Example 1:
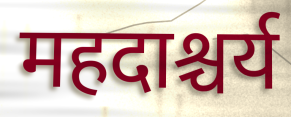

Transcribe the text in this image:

महदाश्चर्य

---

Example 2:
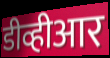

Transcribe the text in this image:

डीव्हीआर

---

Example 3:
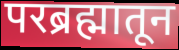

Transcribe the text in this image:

परब्रह्मातून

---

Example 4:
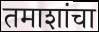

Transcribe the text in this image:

तमाशांचा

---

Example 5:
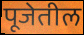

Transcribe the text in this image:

पूजेतील